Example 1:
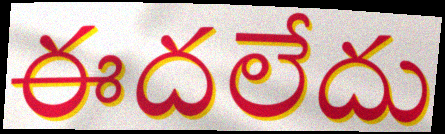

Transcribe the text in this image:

ఈదలేదు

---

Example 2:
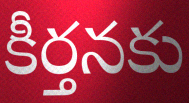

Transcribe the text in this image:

కీర్తనకు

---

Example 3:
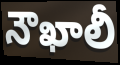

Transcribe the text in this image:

నౌఖాలీ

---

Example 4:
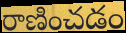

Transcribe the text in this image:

రాణించడం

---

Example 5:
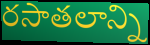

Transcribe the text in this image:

రసాతలాన్ని